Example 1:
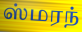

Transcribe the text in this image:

ஸ்மரந்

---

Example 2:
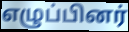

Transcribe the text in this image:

எழுப்பினர்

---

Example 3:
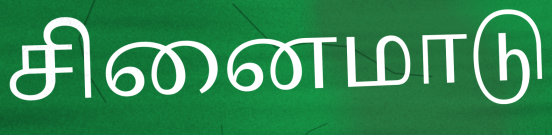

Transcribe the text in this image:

சினைமாடு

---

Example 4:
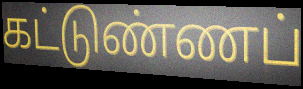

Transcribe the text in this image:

கட்டுண்ணப்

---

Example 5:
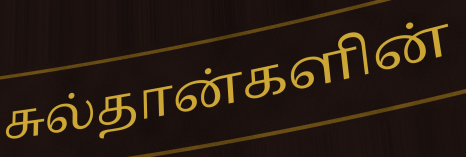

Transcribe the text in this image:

சுல்தான்களின்